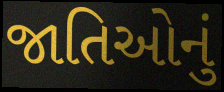
જાતિઓનું